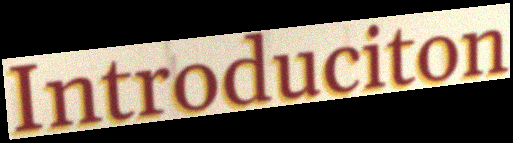
Introduciton